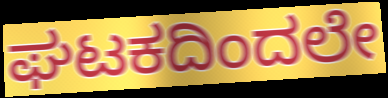
ಘಟಕದಿಂದಲೇ